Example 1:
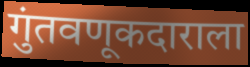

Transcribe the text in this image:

गुंतवणूकदाराला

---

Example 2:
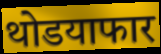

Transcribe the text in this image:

थोडयाफार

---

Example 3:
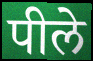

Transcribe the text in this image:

पीले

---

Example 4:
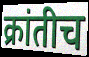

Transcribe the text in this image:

क्रांतीच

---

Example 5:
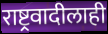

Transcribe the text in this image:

राष्ट्रवादीलाही